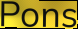
Pons